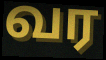
வர